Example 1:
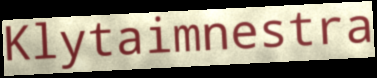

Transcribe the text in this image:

Klytaimnestra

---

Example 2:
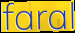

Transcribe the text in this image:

faral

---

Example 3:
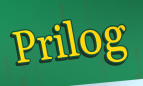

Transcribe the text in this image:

Prilog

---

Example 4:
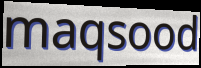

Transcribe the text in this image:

maqsood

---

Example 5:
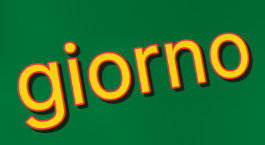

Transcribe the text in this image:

giorno